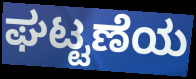
ಘಟ್ಟಣೆಯ